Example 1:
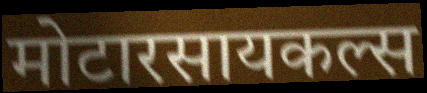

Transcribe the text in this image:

मोटारसायकल्स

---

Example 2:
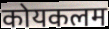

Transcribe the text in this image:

कोयकलम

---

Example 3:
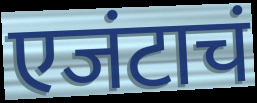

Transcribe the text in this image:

एजंटाचं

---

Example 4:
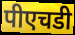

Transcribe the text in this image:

पीएचडी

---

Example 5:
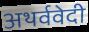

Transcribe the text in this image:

अथर्ववेदी